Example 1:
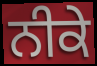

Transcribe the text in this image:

ਨੀਕੇ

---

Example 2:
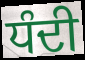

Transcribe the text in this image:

ਧੰਦੀ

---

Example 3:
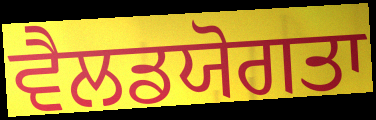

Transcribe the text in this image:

ਵੈਲਡਯੋਗਤਾ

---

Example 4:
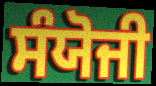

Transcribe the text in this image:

ਸੰਯੋਜੀ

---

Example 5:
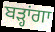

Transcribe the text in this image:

ਬੜ੍ਹਾਂਗਾ